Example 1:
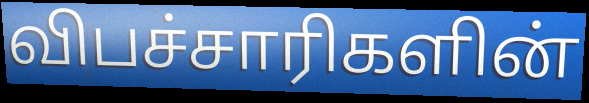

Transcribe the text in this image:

விபச்சாரிகளின்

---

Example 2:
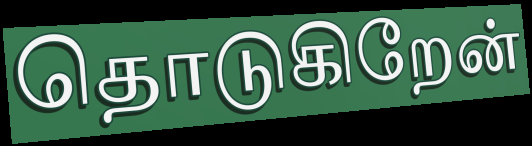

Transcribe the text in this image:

தொடுகிறேன்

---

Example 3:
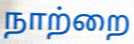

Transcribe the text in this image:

நாற்றை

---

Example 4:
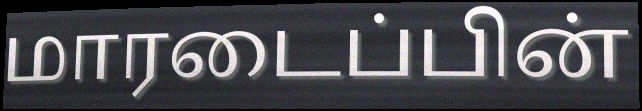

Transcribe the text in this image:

மாரடைப்பின்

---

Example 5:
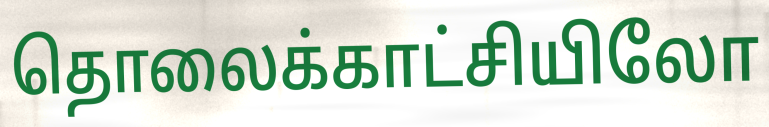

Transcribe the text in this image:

தொலைக்காட்சியிலோ